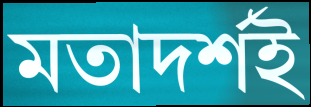
মতাদৰ্শই